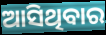
ଆସିଥିବାର